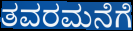
ತವರಮನೆಗೆ